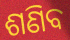
ଶଣିବ